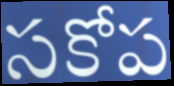
సకోప